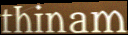
thinam